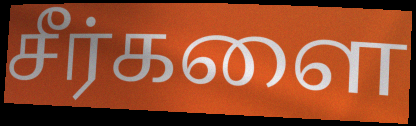
சீர்களை